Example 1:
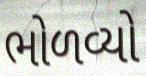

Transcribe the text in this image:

ભોળવ્યો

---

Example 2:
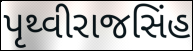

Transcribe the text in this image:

પૃથ્વીરાજસિંહ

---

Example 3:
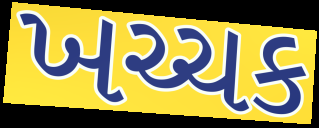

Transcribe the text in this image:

ખચ્ચક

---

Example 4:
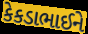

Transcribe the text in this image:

કેકડાભાઈને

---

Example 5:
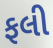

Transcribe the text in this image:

ફલી